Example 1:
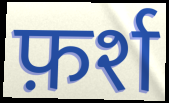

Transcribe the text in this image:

फ़र्श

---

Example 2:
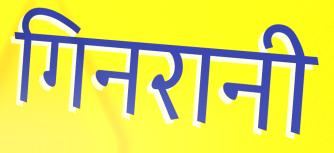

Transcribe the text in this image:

गिनरानी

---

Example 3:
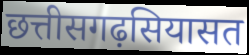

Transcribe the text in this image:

छत्तीसगढ़सियासत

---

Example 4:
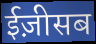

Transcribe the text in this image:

ईज़ीसब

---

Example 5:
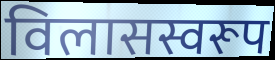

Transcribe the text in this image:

विलासस्वरूप